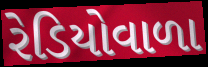
રેડિયોવાળા